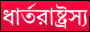
ধার্তরাষ্ট্রস্য